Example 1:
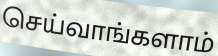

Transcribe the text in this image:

செய்வாங்களாம்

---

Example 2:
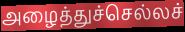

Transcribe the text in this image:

அழைத்துச்செல்லச்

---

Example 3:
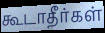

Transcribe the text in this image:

கூடாதீர்கள்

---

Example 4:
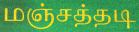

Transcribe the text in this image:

மஞ்சத்தடி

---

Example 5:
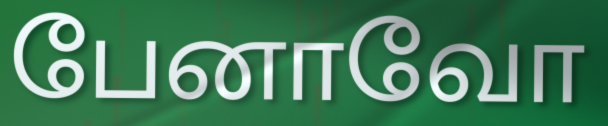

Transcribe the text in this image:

பேனாவோ